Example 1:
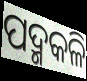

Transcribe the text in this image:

ପଦ୍ମକଳି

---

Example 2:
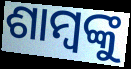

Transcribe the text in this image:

ଶାମ୍ବଙ୍କୁ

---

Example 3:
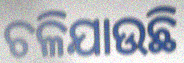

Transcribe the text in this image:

ଚଳିଯାଉଛି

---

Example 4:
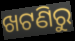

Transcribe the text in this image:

ଖଟଣିରୁ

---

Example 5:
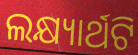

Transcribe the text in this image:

ଲକ୍ଷ୍ୟାର୍ଥଟି